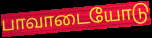
பாவாடையோடு